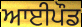
ਆਈਪੌਡ